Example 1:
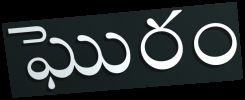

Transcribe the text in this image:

ఘొరం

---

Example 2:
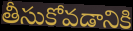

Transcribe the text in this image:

తీసుకోవడానికి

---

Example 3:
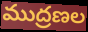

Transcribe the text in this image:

ముద్రణల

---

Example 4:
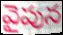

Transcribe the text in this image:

వైపున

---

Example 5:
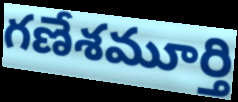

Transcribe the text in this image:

గణేశమూర్తి